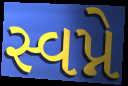
સ્વપ્ને